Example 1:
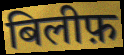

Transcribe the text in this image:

बिलीफ़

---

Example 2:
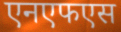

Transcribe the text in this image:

एनएफएस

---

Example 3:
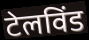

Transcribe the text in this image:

टेलविंड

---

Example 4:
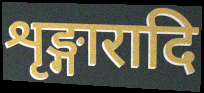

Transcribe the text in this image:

शृङ्गारादि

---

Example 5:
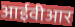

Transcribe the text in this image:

आईवीआर